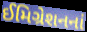
ઈમિગ્રેશનનાં